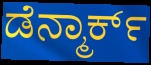
ಡೆನ್ಮಾರ್ಕ್